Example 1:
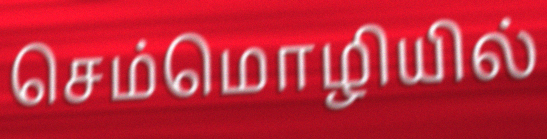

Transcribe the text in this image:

செம்மொழியில்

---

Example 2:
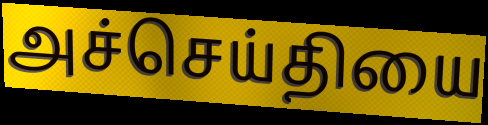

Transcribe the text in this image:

அச்செய்தியை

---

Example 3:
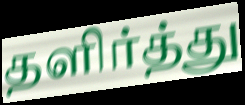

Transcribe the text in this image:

தளிர்த்து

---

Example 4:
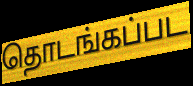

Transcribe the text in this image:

தொடங்கப்பட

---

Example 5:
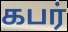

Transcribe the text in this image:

கபர்